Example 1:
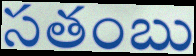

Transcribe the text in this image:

సతంబు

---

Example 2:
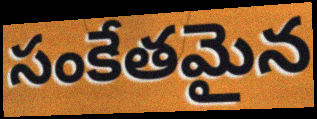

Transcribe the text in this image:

సంకేతమైన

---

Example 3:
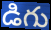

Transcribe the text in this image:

డిగు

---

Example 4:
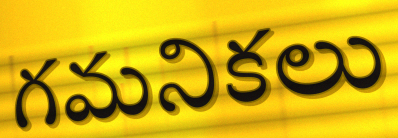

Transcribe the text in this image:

గమనికలు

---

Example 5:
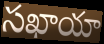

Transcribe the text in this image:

సఖాయా